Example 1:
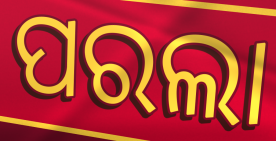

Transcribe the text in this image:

ପରଲା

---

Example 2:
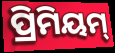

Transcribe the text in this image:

ପ୍ରିମିୟମ୍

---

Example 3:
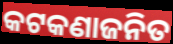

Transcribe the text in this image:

କଟକଣାଜନିତ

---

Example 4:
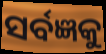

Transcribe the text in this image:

ସର୍ବଜ୍ଞକୁ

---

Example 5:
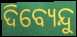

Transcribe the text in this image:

ଦିବ୍ୟେନ୍ଦୁ